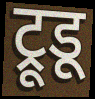
ट्रूडू